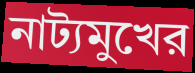
নাট্যমুখের